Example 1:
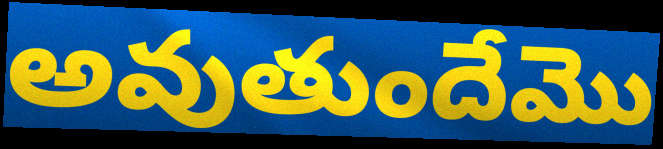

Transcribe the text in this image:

అవుతుందేమొ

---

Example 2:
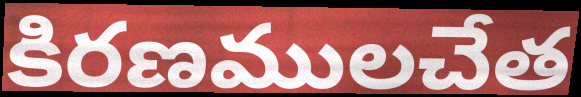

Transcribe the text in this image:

కిరణములచేత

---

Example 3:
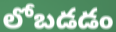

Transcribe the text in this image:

లోబడడం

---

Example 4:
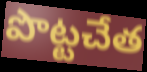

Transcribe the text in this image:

పొట్టచేత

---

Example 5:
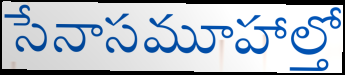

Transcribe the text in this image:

సేనాసమూహాల్తో